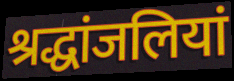
श्रद्धांजलियां